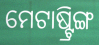
ମେଟାଷ୍ଟ୍ରିଙ୍ଗ